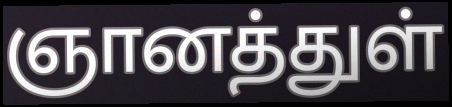
ஞானத்துள்